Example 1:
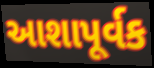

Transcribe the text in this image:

આશાપૂર્વક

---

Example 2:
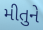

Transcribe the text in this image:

મીતુને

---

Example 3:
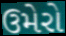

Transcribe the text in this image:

ઉમેરો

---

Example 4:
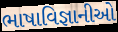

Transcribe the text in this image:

ભાષાવિજ્ઞાનીઓ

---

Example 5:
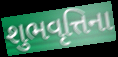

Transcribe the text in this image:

શુભવૃત્તિના